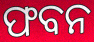
ଫବନ